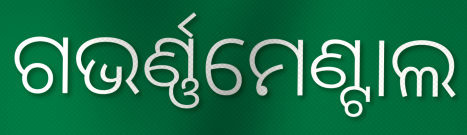
ଗଭର୍ଣ୍ଣମେଣ୍ଟାଲ